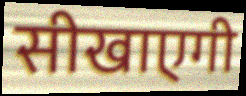
सीखाएगी